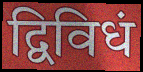
द्विविधं